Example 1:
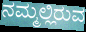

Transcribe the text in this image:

ನಮ್ಮಲ್ಲಿರುವ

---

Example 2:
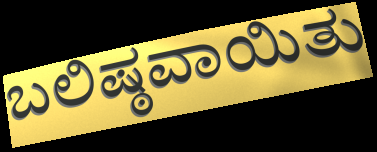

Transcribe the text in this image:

ಬಲಿಷ್ಠವಾಯಿತು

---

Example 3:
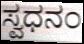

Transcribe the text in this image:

ಸ್ವಧನಂ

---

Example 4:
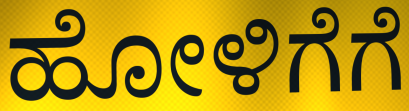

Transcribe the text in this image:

ಹೋಳಿಗೆಗೆ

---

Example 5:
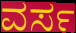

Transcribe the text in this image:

ವರ್ಸ